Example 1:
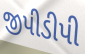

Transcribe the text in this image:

જીપીડીપી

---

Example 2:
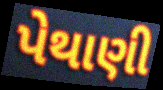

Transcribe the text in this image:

પેથાણી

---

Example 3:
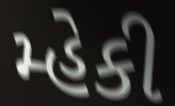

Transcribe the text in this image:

મ્હેકી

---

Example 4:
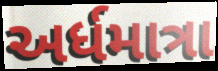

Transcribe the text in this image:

અર્ધમાત્રા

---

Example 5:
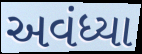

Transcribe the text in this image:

અવંધ્યા